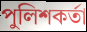
পুলিশকর্তা